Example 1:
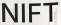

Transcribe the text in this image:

NIFT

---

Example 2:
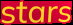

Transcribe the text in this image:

stars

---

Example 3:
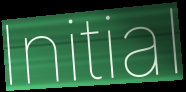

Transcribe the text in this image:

Initial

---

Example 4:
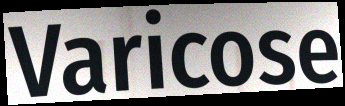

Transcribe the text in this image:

Varicose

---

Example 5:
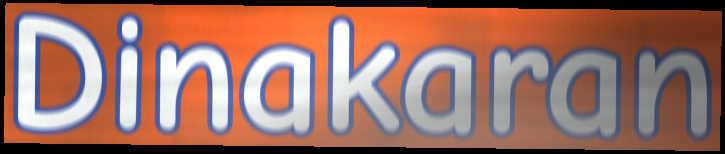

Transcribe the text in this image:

Dinakaran